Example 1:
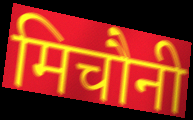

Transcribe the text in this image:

मिचौनी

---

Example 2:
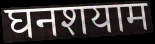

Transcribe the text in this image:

घनशयाम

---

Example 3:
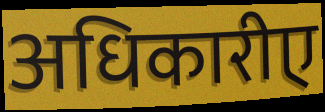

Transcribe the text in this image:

अधिकारीए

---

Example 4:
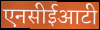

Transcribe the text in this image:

एनसीईआटी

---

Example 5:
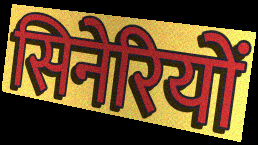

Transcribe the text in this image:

सिनेरियों